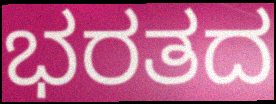
ಭರತದ